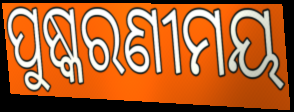
ପୁଷ୍କରଣୀମୟ